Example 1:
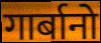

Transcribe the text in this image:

गार्बानो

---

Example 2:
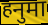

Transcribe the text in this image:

हनुमा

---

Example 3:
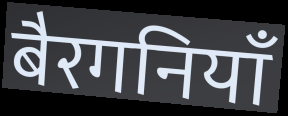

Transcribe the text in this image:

बैरगनियाँ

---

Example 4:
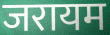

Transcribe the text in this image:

जरायम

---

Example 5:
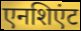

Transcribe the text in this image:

एनशिएंट